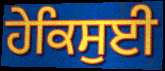
ਹੇਕਿਸੁਈ